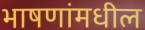
भाषणांमधील